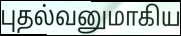
புதல்வனுமாகிய